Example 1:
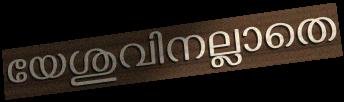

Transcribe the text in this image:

യേശുവിനല്ലാതെ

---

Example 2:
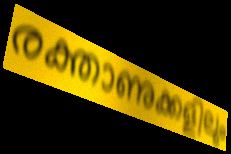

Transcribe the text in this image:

രക്താണുക്കളിലും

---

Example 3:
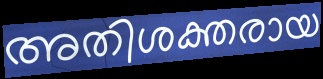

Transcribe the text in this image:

അതിശക്തരായ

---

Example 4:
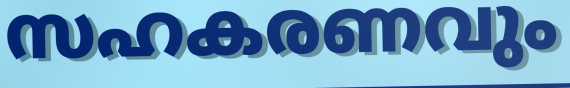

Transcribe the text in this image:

സഹകരണവും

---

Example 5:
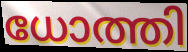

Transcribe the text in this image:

ധോത്തി